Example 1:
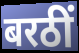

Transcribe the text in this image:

बरठीं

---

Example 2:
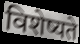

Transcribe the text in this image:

विशेष्यते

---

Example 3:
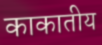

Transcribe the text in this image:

काकातीय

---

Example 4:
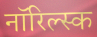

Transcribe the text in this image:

नॉरिल्स्क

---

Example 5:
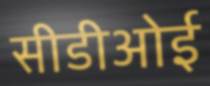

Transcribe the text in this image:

सीडीओई